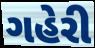
ગહેરી